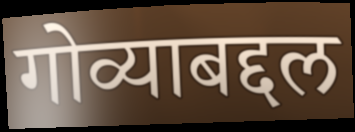
गोव्याबद्दल